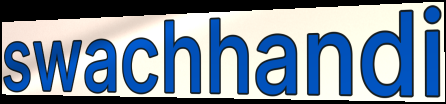
swachhandi